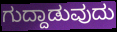
ಗುದ್ದಾಡುವುದು